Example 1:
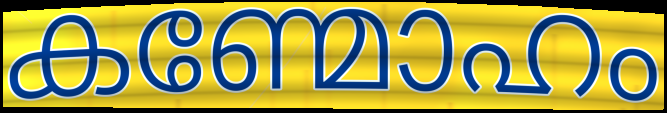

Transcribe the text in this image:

കണ്മോഹം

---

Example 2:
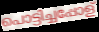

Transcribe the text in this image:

പൊട്ടിച്ചപ്പോള്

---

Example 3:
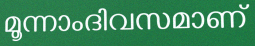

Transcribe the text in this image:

മൂന്നാംദിവസമാണ്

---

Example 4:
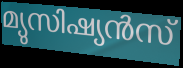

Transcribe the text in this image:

മ്യുസിഷ്യൻസ്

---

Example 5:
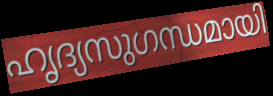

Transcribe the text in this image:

ഹൃദ്യസുഗന്ധമായി